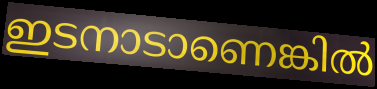
ഇടനാടാണെങ്കിൽ